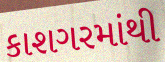
કાશગરમાંથી